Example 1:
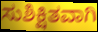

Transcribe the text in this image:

ಸುಶಿಕ್ಷಿತವಾಗಿ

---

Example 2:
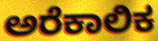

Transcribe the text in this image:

ಅರೆಕಾಲಿಕ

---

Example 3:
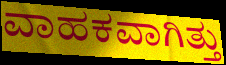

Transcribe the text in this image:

ವಾಹಕವಾಗಿತ್ತು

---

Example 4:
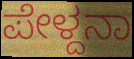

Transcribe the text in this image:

ಪೇಳ್ದನಾ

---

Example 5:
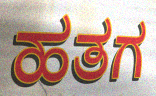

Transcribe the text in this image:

ಹತಗ